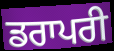
ਡਰਾਪਰੀ